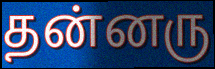
தன்னரு